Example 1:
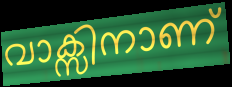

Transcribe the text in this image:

വാക്സിനാണ്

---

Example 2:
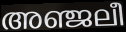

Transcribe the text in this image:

അഞ്ജലീ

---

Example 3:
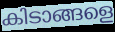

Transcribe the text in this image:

കിടാങ്ങളെ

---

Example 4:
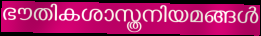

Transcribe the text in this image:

ഭൗതികശാസ്ത്രനിയമങ്ങൾ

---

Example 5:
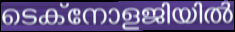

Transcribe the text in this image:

ടെക്‌നോളജിയിൽ